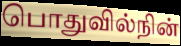
பொதுவில்நின்